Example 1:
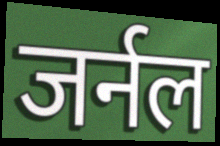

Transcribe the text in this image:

जर्नल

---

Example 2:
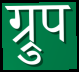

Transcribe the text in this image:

ग्र्रुप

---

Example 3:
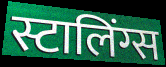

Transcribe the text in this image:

स्टालिंग्स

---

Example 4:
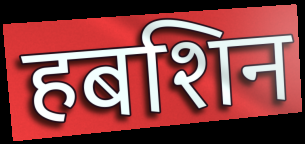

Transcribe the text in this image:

हबशिन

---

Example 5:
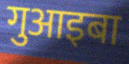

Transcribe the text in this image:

गुआइबा